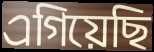
এগিয়েছি